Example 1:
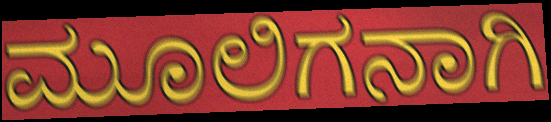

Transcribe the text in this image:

ಮೂಲಿಗನಾಗಿ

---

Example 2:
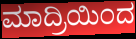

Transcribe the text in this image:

ಮಾದ್ರಿಯಿಂದ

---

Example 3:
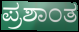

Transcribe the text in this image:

ಪ್ರಶಾಂತ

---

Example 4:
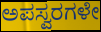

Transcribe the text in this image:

ಅಪಸ್ವರಗಳೇ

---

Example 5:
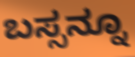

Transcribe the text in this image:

ಬಸ್ಸನ್ನೂ